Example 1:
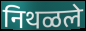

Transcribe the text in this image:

निथळले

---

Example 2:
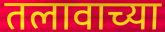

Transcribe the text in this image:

तलावाच्या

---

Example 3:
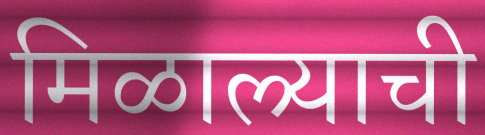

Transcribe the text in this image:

मिळाल्याची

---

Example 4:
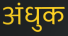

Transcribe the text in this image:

अंधुक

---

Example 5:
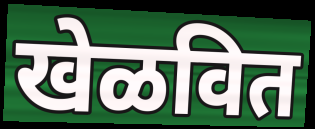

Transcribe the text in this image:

खेळवित